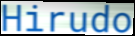
Hirudo